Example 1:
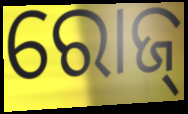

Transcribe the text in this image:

ରୋଜ୍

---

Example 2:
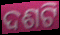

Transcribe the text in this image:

ଦଶଟି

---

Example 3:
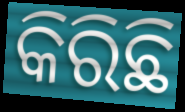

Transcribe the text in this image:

କିରିଛି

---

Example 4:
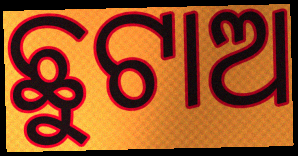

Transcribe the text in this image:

ଛୁଟାଅ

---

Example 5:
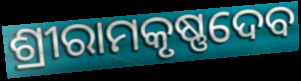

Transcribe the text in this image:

ଶ୍ରୀରାମକୃଷ୍ଣଦେବ